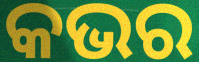
କଭର